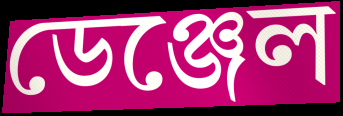
ডেঞ্জেল